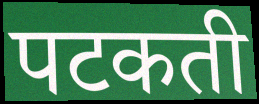
पटकती